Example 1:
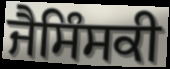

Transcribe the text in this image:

ਜੈਸਿੰਸਕੀ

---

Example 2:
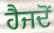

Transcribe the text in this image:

ਹੈਜਦੋਂ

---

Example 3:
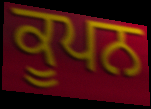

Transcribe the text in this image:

ਕੂਪਨ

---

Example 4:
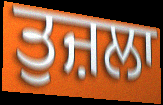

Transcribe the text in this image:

ਤੁਜ਼ਲਾ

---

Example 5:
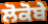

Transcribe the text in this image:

ਲੋਕੋਬੇ